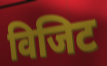
विजिट